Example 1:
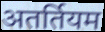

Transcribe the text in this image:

अतर्तियम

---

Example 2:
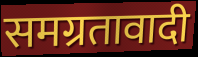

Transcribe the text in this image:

समग्रतावादी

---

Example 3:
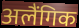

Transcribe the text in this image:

अलैंगिक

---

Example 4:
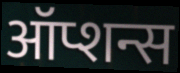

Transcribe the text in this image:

ऑप्शन्स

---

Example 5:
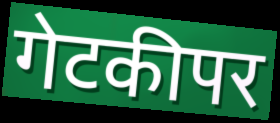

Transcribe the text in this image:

गेटकीपर